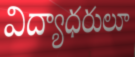
విద్యాధరులూ